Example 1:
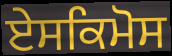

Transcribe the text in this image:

ਏਸਕਿਮੋਸ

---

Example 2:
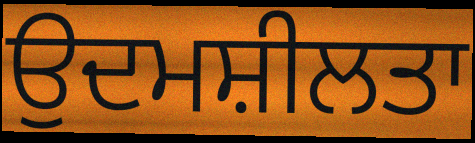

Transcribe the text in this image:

ਉਦਮਸ਼ੀਲਤਾ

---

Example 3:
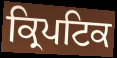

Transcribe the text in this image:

ਕ੍ਰਿਪਟਿਕ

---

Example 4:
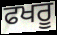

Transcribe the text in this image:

ਫਖਰੂ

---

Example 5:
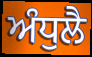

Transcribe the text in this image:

ਅੰਧੁਲੈ